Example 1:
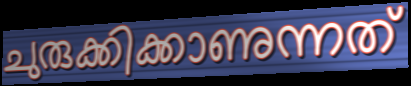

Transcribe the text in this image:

ചുരുക്കിക്കാണുന്നത്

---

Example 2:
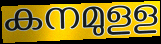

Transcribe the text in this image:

കനമുളള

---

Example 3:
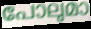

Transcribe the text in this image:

പോലുമാ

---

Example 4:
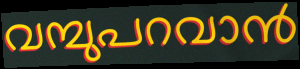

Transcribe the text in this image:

വമ്പുപറവാൻ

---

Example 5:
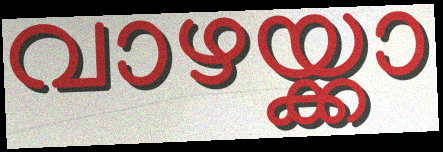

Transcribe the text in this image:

വാഴയ്ക്കാ